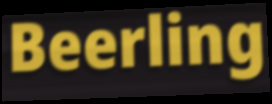
Beerling